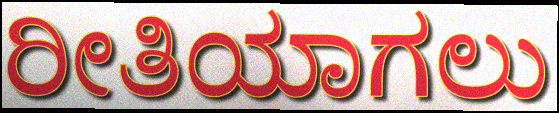
ರೀತಿಯಾಗಲು